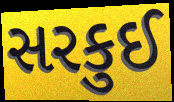
સરકુઈ